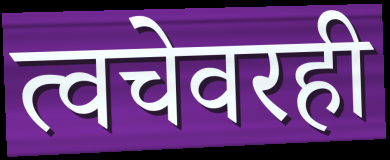
त्वचेवरही